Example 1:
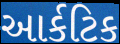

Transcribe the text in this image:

આર્કટિક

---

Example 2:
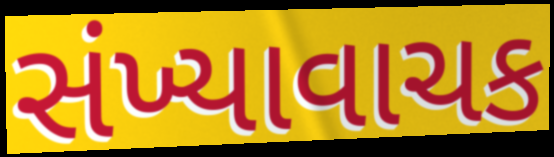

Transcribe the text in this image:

સંખ્યાવાચક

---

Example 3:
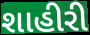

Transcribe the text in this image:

શાહીરી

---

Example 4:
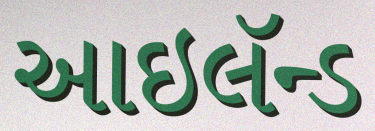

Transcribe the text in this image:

આઇલૅન્ડ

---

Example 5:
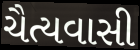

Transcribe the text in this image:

ચૈત્યવાસી